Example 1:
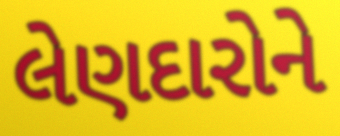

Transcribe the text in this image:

લેણદારોને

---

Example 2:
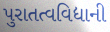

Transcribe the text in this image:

પુરાતત્વવિદ્યાની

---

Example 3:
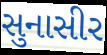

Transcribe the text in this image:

સુનાસીર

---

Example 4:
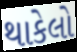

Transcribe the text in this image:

થાકેલો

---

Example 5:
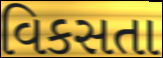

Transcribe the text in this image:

વિકસતા